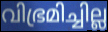
വിഭ്രമിച്ചില്ല